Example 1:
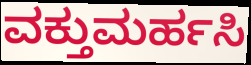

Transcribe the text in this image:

ವಕ್ತುಮರ್ಹಸಿ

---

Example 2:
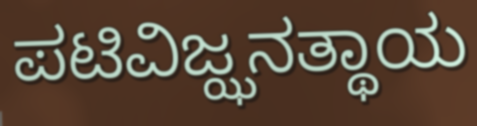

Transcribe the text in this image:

ಪಟಿವಿಜ್ಝನತ್ಥಾಯ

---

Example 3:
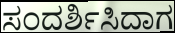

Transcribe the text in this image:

ಸಂದರ್ಶಿಸಿದಾಗ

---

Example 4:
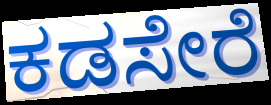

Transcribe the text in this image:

ಕಡಸೇರೆ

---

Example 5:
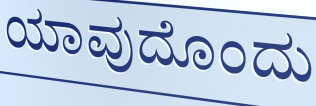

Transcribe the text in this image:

ಯಾವುದೊಂದು